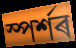
স্পৰ্শৰ